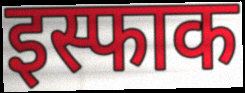
इस्फाक